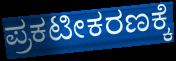
ಪ್ರಕಟೀಕರಣಕ್ಕೆ